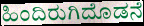
ಹಿಂದಿರುಗಿದೊಡನೆ